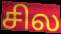
சில